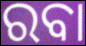
ରବା